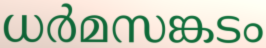
ധർമസങ്കടം